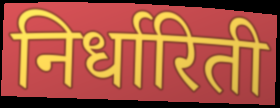
निर्धारिती